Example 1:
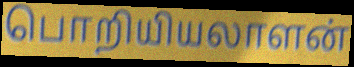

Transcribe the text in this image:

பொறியியலாளன்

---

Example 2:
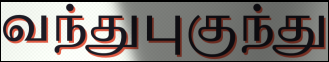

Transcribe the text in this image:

வந்துபுகுந்து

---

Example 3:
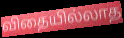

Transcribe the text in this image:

விதையில்லாத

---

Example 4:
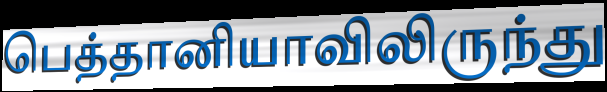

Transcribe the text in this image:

பெத்தானியாவிலிருந்து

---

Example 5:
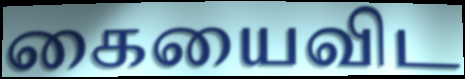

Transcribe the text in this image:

கையைவிட